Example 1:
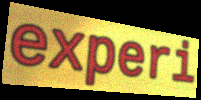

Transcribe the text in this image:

experi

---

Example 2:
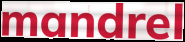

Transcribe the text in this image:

mandrel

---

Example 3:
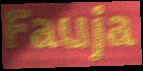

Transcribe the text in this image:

Fauja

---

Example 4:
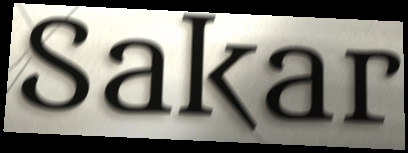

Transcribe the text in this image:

Sakar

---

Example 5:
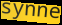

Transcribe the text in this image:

synne